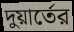
দুয়ার্তের